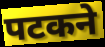
पटकने